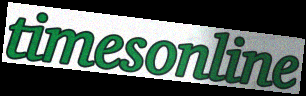
timesonline